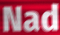
Nad